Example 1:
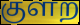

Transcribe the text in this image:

குளற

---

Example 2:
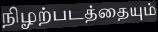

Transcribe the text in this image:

நிழற்படத்தையும்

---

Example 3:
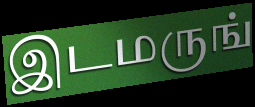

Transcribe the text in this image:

இடமருங்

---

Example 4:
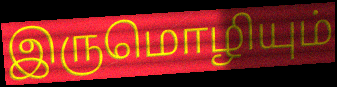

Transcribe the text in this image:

இருமொழியும்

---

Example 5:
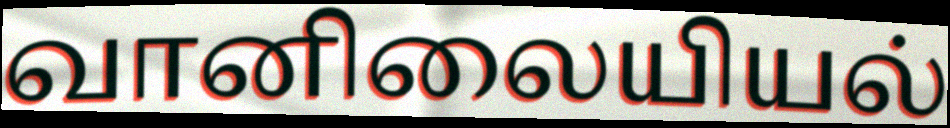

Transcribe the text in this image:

வானிலையியல்